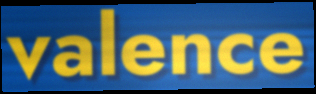
valence